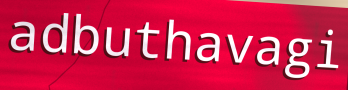
adbuthavagi